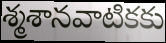
శ్మశానవాటికకు